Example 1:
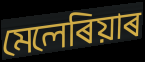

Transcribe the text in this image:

মেলেৰিয়াৰ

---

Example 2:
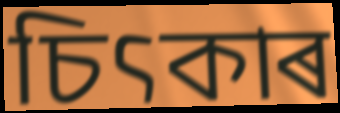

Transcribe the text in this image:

চিৎকাৰ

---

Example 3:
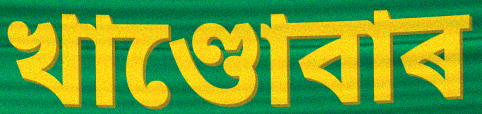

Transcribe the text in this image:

খাণ্ডোবাৰ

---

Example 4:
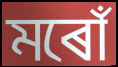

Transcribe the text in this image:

মৰোঁ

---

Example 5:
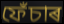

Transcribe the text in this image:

ফেঁচাৰ